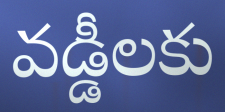
వడ్డీలకు